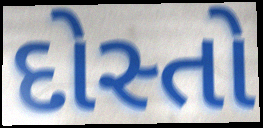
દોસ્તો